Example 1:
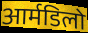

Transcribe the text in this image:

आर्मडिलो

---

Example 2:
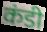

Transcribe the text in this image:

कंडी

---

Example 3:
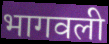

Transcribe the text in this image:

भागवली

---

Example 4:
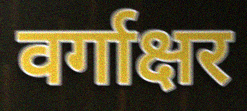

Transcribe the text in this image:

वर्गाक्षर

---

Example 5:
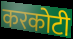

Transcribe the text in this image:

करकोटी